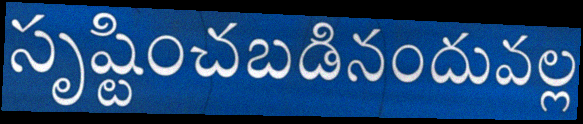
సృష్టించబడినందువల్ల